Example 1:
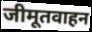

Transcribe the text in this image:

जीमूतवाहन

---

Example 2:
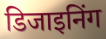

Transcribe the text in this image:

डिजाइनिंग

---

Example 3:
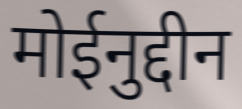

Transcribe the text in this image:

मोईनुद्दीन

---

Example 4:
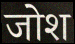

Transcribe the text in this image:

जोश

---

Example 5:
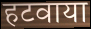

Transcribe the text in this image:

हटवाया